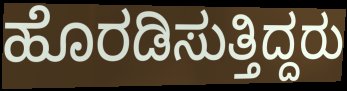
ಹೊರಡಿಸುತ್ತಿದ್ದರು